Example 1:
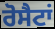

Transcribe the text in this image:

ਰੋਸੈਟਾਂ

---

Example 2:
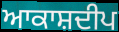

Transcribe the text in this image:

ਆਕਾਸ਼ਦੀਪ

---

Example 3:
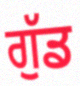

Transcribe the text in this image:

ਗੁੱਡ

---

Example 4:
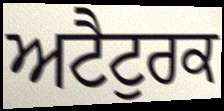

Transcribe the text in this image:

ਅਟੈਟੁਰਕ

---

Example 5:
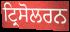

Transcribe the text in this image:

ਟ੍ਰਿਸੋਲਰਨ